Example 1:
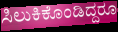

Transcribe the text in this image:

ಸಿಲುಕಿಕೊಂಡಿದ್ದರೂ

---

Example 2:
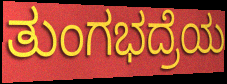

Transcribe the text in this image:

ತುಂಗಭದ್ರೆಯ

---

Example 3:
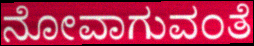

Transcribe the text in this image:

ನೋವಾಗುವಂತೆ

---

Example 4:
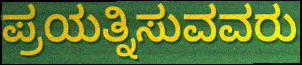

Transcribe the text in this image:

ಪ್ರಯತ್ನಿಸುವವರು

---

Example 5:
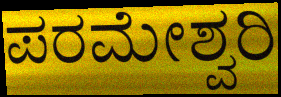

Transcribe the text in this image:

ಪರಮೇಶ್ವರಿ